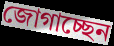
জোগাচ্ছেন